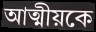
আত্মীয়কে